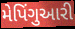
મેપિંગુઆરી